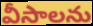
వీసాలను